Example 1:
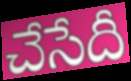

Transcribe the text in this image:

చేసేదీ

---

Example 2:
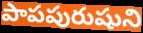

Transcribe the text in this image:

పాపపురుషుని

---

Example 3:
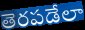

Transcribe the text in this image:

తెరపడేలా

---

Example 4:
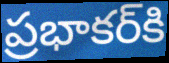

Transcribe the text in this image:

ప్రభాకర్‌కి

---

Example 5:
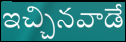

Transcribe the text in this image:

ఇచ్చినవాడే